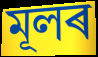
মূলৰ